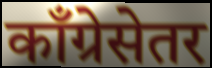
काँग्रेसेतर